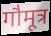
गौमूत्र